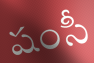
షంసీ